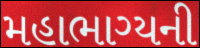
મહાભાગ્યની